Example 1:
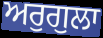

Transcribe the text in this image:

ਅਰੁਗੁਲਾ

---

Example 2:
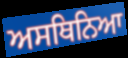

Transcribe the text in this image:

ਅਸਥਿਨਿਆ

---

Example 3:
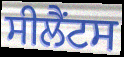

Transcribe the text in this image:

ਸੀਲੈਂਟਸ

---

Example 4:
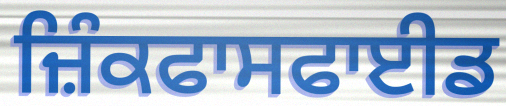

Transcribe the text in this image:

ਜ਼ਿੰਕਫਾਸਫਾਈਡ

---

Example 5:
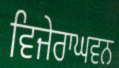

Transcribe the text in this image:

ਵਿਜੇਰਾਘਵਨ